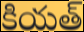
కియత్